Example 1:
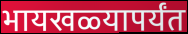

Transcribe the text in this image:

भायखळ्यापर्यंत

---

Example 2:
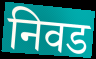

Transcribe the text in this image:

निवड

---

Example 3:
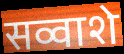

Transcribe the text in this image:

सव्वाशे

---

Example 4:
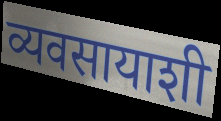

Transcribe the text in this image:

व्यवसायाशी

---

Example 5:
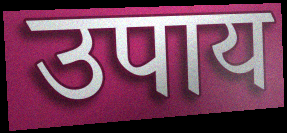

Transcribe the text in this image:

उपाय